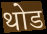
थोड